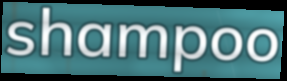
shampoo